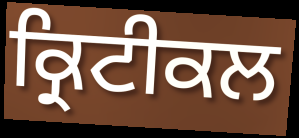
ਕ੍ਰਿਟੀਕਲ